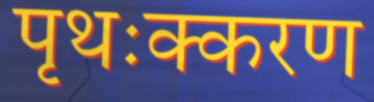
पृथःक्करण